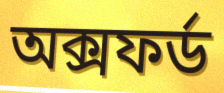
অক্সফৰ্ড